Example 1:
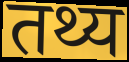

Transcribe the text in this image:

तथ्य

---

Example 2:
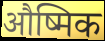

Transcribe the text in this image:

औष्मिक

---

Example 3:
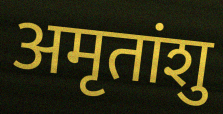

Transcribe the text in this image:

अमृतांशु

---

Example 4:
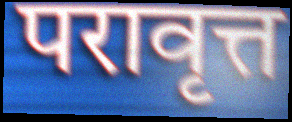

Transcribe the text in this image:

परावृत्त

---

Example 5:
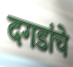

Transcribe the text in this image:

दगडांचे